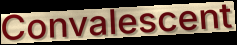
Convalescent